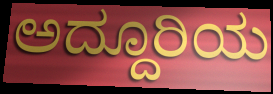
ಅದ್ದೂರಿಯ